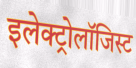
इलेक्ट्रोलॉजिस्ट